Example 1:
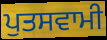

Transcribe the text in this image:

ਪੁਤਸਵਾਮੀ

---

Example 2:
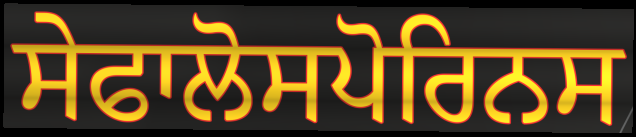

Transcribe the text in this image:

ਸੇਫਾਲੋਸਪੋਰਿਨਸ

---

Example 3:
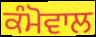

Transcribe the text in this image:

ਕੰਮੋਵਾਲ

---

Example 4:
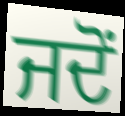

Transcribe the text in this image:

ਜਦੋਂ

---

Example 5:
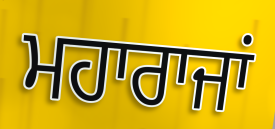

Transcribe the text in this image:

ਮਹਾਰਾਜਾਂ